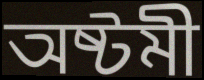
অষ্টমী